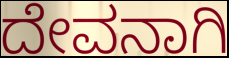
ದೇವನಾಗಿ